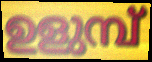
ഉളുമ്പ്